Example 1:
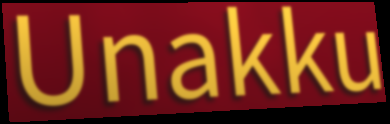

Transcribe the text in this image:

Unakku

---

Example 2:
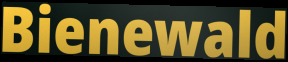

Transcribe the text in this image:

Bienewald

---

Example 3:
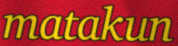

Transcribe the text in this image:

matakun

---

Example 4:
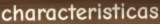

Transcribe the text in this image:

characteristicas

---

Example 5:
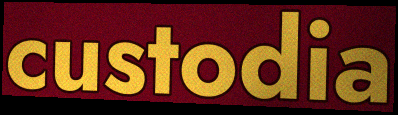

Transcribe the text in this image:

custodia